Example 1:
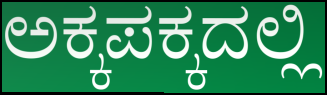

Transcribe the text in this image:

ಅಕ್ಕಪಕ್ಕದಲ್ಲಿ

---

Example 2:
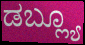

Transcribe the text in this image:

ಡಬ್ಲ್ಯೂ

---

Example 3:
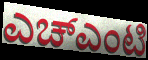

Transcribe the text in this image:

ಎಚ್ಎಂಟಿ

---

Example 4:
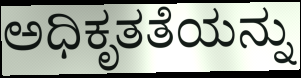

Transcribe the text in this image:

ಅಧಿಕೃತತೆಯನ್ನು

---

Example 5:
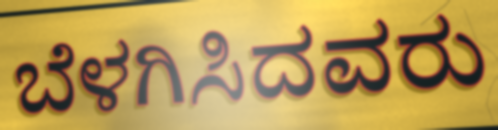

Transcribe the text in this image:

ಬೆಳಗಿಸಿದವರು